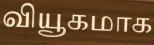
வியூகமாக